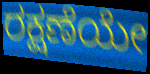
ರಕ್ಷಣೆಯೇ